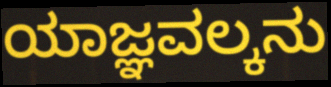
ಯಾಜ್ಞವಲ್ಕನು